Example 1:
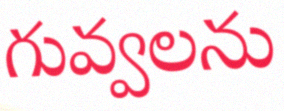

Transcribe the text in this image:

గువ్వలను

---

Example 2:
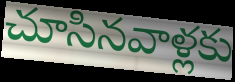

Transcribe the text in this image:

చూసినవాళ్లకు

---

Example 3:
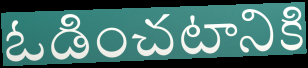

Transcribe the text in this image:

ఓడించటానికి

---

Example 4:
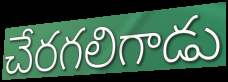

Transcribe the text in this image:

చేరగలిగాడు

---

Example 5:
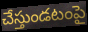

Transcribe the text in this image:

చేస్తుండటంపై